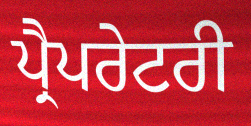
ਪ੍ਰੈਪਰੇਟਰੀ